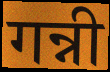
गन्नी